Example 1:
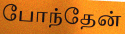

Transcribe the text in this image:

போந்தேன்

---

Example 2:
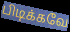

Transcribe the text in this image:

பிடிக்கவே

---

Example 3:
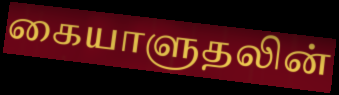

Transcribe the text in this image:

கையாளுதலின்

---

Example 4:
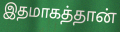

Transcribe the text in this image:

இதமாகத்தான்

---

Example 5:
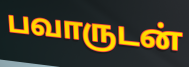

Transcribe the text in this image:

பவாருடன்